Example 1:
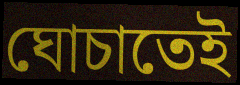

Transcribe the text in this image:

ঘোচাতেই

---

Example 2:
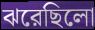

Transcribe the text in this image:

ঝরেছিলো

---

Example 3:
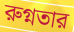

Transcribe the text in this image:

রুগ্নতার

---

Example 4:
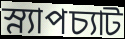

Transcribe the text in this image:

স্ন্যাপচ্যাট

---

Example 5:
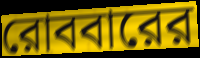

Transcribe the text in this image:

রোববারের